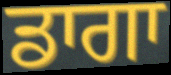
ਡਾਗਾ